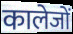
कालेजों